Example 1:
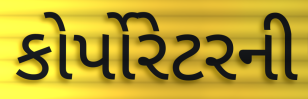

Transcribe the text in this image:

કોર્પોરેટરની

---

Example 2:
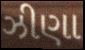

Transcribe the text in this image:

ઝીણા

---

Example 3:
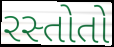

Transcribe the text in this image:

રસ્તોતો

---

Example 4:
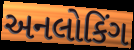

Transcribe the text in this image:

અનલોકિંગ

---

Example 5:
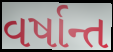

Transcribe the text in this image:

વર્ષાન્ત